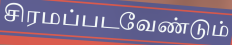
சிரமப்படவேண்டும்